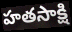
హతసాక్షి